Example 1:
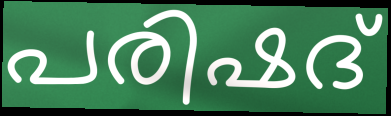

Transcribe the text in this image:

പരിഷദ്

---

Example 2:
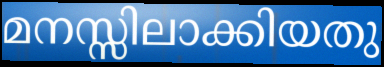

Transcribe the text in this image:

മനസ്സിലാക്കിയതു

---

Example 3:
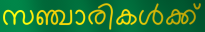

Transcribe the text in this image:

സഞ്ചാരികൾക്ക്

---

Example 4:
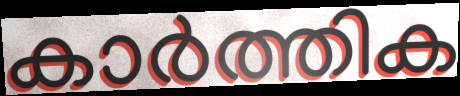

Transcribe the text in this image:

കാർത്തിക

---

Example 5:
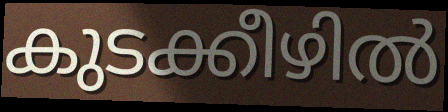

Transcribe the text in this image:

കുടക്കീഴിൽ